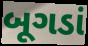
બૂગડાં